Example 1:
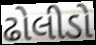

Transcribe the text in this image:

ઢોલીડો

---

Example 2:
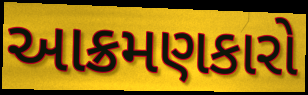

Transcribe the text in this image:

આક્રમણકારો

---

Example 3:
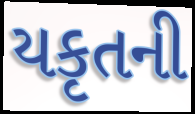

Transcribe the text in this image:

યકૃતની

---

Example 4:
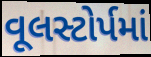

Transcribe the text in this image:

વૂલસ્ટોર્પમાં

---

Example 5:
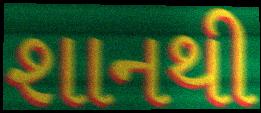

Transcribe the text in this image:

શાનથી